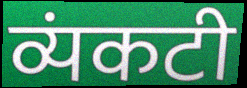
व्यंकटी